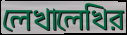
লেখালেখির